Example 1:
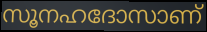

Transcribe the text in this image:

സൂനഹദോസാണ്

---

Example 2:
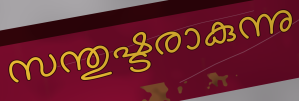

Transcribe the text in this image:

സന്തുഷ്ടരാകുന്നു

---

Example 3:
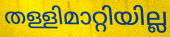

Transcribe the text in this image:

തള്ളിമാറ്റിയില്ല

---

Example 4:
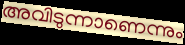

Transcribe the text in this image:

അവിടുന്നാണെന്നും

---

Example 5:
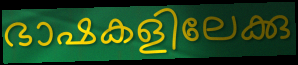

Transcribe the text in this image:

ഭാഷകളിലേക്കു